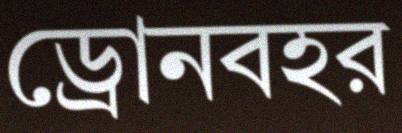
ড্রোনবহর